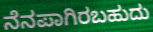
ನೆನಪಾಗಿರಬಹುದು